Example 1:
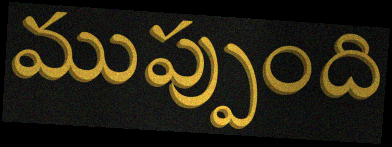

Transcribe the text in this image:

ముప్పుంది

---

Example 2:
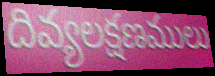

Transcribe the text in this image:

దివ్యలక్షణములు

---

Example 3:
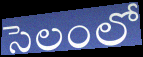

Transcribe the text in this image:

సెలంలో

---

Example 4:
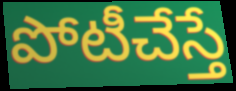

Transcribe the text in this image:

పోటీచేస్తే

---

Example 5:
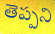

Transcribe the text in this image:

తెప్పని